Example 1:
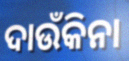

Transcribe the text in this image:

ଦାଉଁକିନା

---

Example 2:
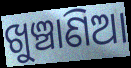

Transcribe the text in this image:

ଖୁଞ୍ଚାଣିଆ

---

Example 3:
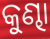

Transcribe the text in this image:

କୁଣ୍ଢା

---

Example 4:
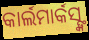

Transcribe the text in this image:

କାର୍ଲମାର୍କସ୍ଙ୍କ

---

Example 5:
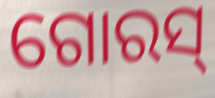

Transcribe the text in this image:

ଗୋରସ୍